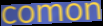
comon